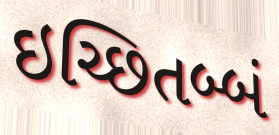
ઇચ્છિતબ્બં